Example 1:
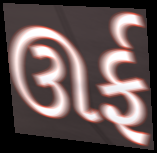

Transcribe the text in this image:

ઊર્ફ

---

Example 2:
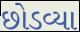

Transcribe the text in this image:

છોડવ્યા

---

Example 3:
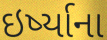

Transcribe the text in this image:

ઇર્ષ્યાના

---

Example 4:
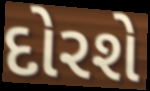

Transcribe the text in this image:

દોરશે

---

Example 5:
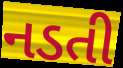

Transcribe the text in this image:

નડતી